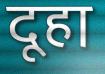
दूहा